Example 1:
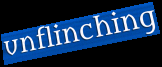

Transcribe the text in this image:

unflinching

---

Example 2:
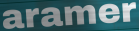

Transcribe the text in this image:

aramer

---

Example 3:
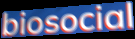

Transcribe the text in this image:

biosocial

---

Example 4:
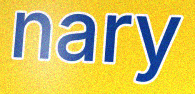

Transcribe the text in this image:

nary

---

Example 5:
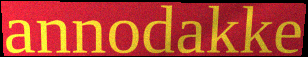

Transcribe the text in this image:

annodakke